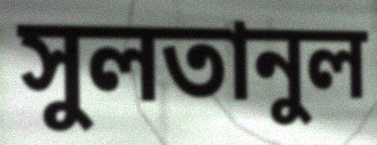
সুলতানুল